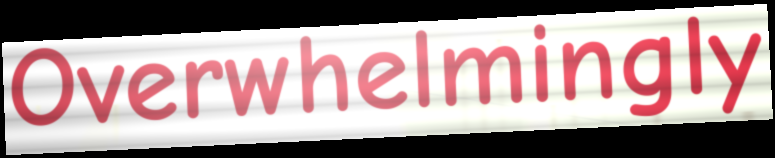
Overwhelmingly